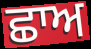
ਛਾਅ